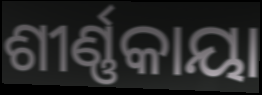
ଶୀର୍ଣ୍ଣକାୟା